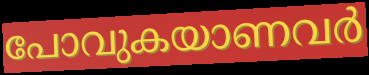
പോവുകയാണവർ